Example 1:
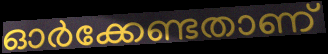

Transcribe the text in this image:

ഓർക്കേണ്ടതാണ്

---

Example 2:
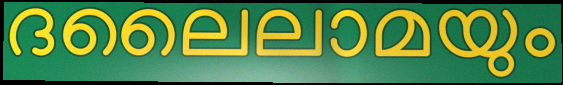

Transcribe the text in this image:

ദലൈലാമയും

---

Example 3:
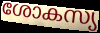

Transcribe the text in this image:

ശോകസ്യ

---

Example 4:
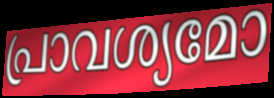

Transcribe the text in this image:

പ്രാവശ്യമോ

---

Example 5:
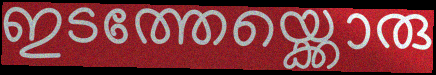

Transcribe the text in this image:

ഇടത്തേയ്ക്കൊരു